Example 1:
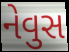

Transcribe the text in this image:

નેવુસ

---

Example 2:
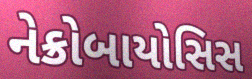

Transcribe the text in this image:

નેક્રોબાયોસિસ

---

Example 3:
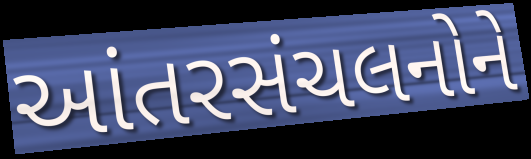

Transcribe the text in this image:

આંતરસંચલનોને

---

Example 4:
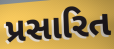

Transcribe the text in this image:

પ્રસારિત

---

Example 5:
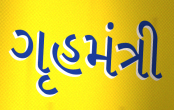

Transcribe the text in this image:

ગૃહમંત્રી